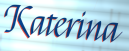
Katerina